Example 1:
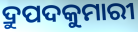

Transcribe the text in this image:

ଦ୍ରୁପଦକୁମାରୀ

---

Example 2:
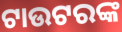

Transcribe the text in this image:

ଟାଉଟରଙ୍କ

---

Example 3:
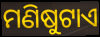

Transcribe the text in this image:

ମଣିଷୁଟାଏ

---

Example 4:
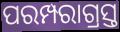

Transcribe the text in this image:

ପରମ୍ପରାଗ୍ରସ୍ତ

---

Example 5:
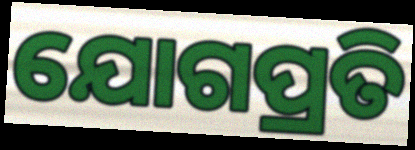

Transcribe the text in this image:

ଯୋଗପ୍ରତି